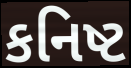
કનિષ્ટ